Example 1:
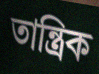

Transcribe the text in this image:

তান্ত্রিক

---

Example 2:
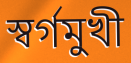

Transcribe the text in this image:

স্বর্গমুখী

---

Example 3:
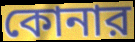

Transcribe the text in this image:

কোনার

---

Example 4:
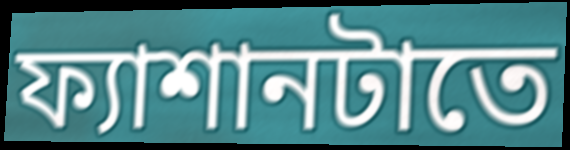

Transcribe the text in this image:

ফ্যাশানটাতে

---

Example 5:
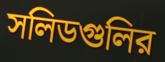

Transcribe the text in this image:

সলিডগুলির